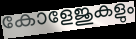
കോളേജുകളും